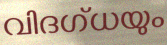
വിദഗ്ധയും